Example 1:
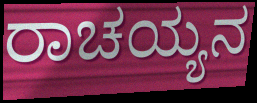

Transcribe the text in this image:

ರಾಚಯ್ಯನ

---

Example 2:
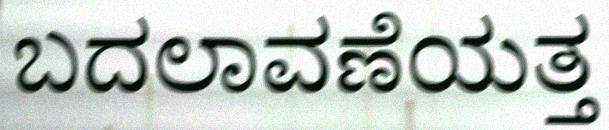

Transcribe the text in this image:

ಬದಲಾವಣೆಯತ್ತ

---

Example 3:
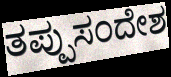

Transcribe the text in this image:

ತಪ್ಪುಸಂದೇಶ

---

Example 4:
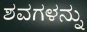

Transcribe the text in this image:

ಶವಗಳನ್ನು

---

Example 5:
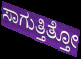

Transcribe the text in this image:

ಸಾಗುತ್ತಿತ್ತೋ